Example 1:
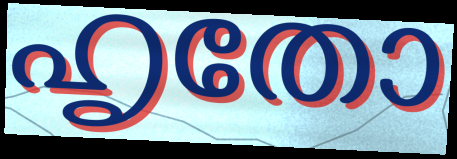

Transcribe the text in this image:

ഹൃതോ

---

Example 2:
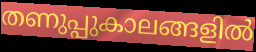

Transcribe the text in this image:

തണുപ്പുകാലങ്ങളിൽ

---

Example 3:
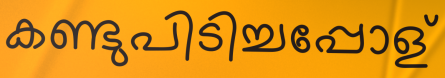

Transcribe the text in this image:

കണ്ടുപിടിച്ചപ്പോള്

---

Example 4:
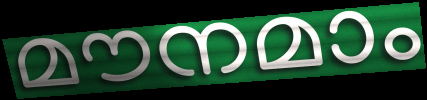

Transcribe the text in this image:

മൗനമാം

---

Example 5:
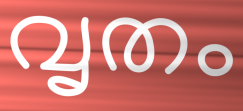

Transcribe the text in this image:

വൃതം